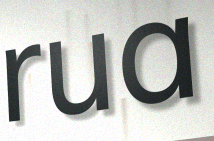
rua